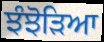
ਝੰਝੋੜਿਆ